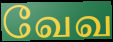
வேவ